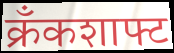
क्रँकशाफ्ट